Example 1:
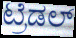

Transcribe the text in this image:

ಟ್ರೆಡಲ್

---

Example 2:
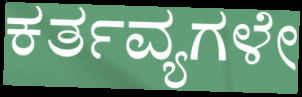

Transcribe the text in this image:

ಕರ್ತವ್ಯಗಳೇ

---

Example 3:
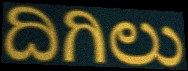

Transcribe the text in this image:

ದಿಗಿಲು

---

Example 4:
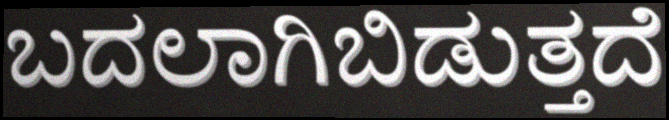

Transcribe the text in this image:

ಬದಲಾಗಿಬಿಡುತ್ತದೆ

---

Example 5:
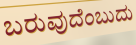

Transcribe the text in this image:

ಬರುವುದೆಂಬುದು